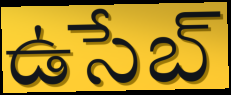
ఉసేబ్